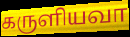
கருளியவா